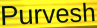
Purvesh